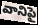
వానిపై